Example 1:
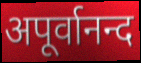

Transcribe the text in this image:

अपूर्वानन्द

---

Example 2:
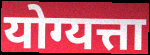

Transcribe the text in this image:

योग्यत्ता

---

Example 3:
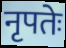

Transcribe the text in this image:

नृपतेः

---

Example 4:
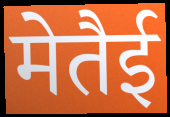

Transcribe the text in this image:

मेतैई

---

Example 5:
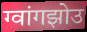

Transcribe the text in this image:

ग्वांगझोउ